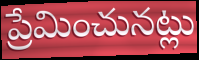
ప్రేమించునట్లు